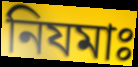
নিযমাঃ